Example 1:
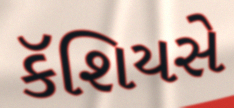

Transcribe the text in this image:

કૅશિયસે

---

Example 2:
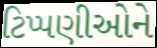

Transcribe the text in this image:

ટિપ્પણીઓને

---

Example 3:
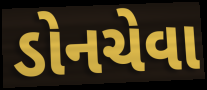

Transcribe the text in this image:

ડોનચેવા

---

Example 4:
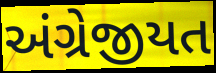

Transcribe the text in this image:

અંગ્રેજીયત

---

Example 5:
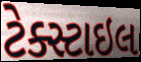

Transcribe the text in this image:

ટેક્સ્ટાઇલ